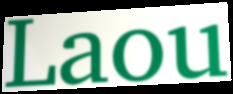
Laou